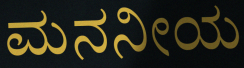
ಮನನೀಯ